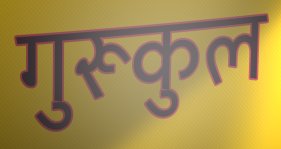
गुरूकुल